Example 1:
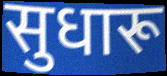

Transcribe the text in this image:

सुधारू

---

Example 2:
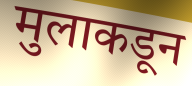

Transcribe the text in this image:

मुलाकडून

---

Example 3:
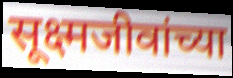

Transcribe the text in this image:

सूक्ष्मजीवांच्या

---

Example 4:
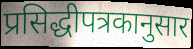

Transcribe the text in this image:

प्रसिद्धीपत्रकानुसार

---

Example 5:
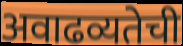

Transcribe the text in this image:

अवाढव्यतेची